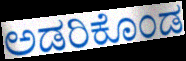
ಅಡರಿಕೊಂಡ